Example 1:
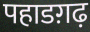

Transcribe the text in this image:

पहाडग़ढ़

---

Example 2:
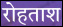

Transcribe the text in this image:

रोहताश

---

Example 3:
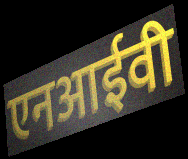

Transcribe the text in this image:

एनआईवी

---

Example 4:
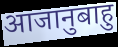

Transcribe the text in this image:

आजानुबाहु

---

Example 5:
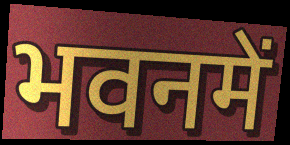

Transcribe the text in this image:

भवनमें